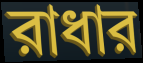
রাধার